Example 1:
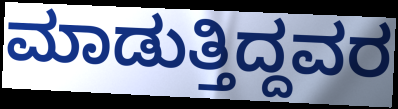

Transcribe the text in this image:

ಮಾಡುತ್ತಿದ್ದವರ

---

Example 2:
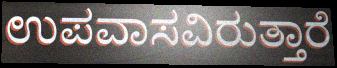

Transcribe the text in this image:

ಉಪವಾಸವಿರುತ್ತಾರೆ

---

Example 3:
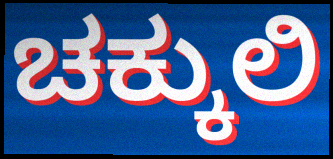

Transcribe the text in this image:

ಚಕ್ಕುಲಿ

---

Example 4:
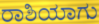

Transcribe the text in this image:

ರಾಶಿಯಾಗು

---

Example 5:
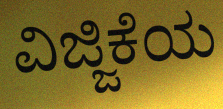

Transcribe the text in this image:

ವಿಜ್ಜಿಕೆಯ